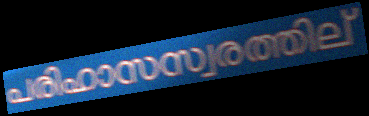
പരിഹാസസ്വരത്തില്